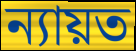
ন্যায়ত